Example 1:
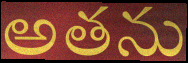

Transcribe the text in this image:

అతను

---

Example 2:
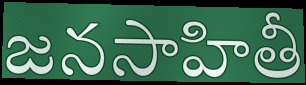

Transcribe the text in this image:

జనసాహితీ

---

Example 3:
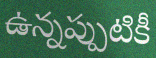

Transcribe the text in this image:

ఉన్నప్పుటికీ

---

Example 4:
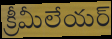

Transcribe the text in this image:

క్రీమీలేయర్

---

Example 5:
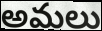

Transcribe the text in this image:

అమలు